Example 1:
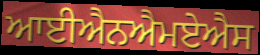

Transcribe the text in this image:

ਆਈਐਨਐਮਏਐਸ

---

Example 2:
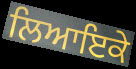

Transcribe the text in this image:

ਲਿਆਇਕੇ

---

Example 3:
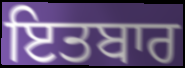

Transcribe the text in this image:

ਇਤਬਾਰ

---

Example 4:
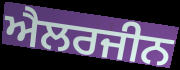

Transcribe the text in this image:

ਐਲਰਜੀਨ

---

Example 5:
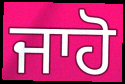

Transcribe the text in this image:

ਜਾਹੋ